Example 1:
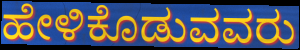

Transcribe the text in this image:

ಹೇಳಿಕೊಡುವವರು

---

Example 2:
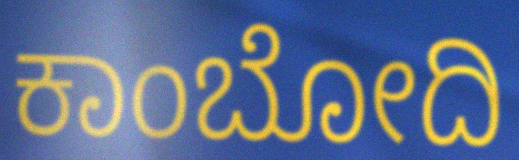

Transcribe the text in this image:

ಕಾಂಬೋದಿ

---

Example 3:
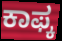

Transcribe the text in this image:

ಕಾಫ್ಕ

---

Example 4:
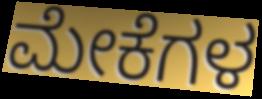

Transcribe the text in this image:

ಮೇಕೆಗಳ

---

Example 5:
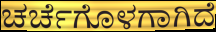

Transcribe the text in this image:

ಚರ್ಚೆಗೊಳಗಾಗಿದೆ